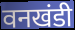
वनखंडी